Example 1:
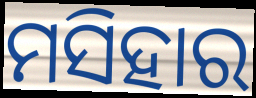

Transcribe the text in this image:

ମସିହାର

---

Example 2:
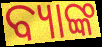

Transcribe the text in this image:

ବ୍ୟାଙ୍କ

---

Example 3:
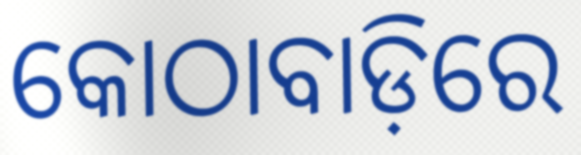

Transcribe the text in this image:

କୋଠାବାଡ଼ିରେ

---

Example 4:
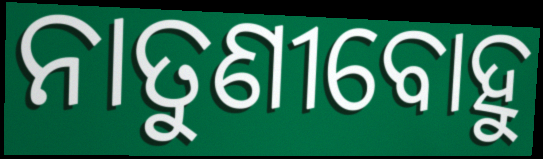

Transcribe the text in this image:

ନାତୁଣୀବୋହୁ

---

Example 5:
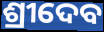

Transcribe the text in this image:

ଶ୍ରୀଦେବ